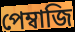
পেম্বাজি